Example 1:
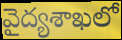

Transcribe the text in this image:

వైద్యశాఖలో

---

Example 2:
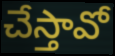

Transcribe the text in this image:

చేస్తావో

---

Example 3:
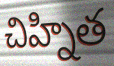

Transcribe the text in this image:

చిహ్నిత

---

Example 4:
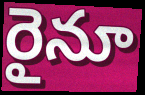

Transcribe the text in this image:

రైనూ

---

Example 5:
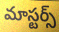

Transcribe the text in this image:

మాస్టర్స్